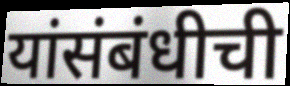
यांसंबंधीची